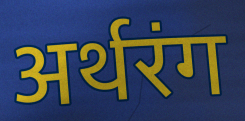
अर्थरंग